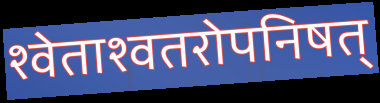
श्वेताश्वतरोपनिषत्